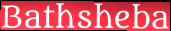
Bathsheba